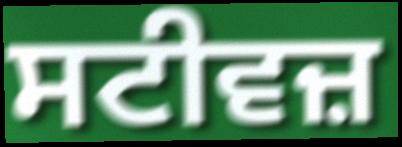
ਸਟੀਵਜ਼